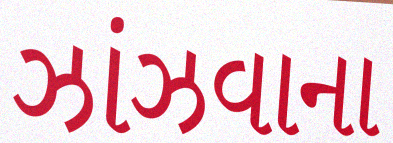
ઝાંઝવાના